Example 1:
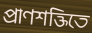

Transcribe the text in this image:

প্রাণশক্তিতে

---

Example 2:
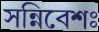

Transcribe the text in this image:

সন্নিবেশঃ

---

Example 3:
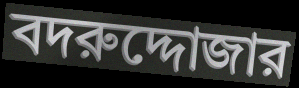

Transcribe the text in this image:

বদরুদ্দোজার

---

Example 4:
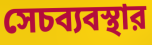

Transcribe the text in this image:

সেচব্যবস্থার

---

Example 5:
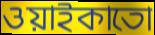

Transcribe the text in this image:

ওয়াইকাতো